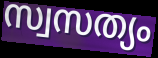
സ്വസത്യം